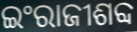
ଇଂରାଜୀଶବ୍ଦ